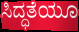
ಸಿದ್ಧತೆಯೂ